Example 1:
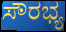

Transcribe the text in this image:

ಸೌರಭ್ಯ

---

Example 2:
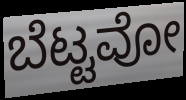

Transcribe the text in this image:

ಬೆಟ್ಟವೋ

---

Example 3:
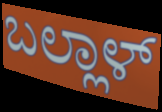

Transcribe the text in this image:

ಬಲ್ಲಾಳ್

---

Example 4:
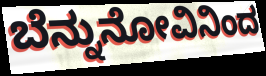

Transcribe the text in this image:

ಬೆನ್ನುನೋವಿನಿಂದ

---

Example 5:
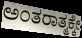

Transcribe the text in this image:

ಅಂತರಾತ್ಮಕ್ಕೇ